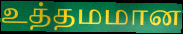
உத்தமமான